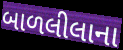
બાળલીલાના